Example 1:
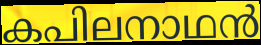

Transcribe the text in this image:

കപിലനാഥൻ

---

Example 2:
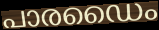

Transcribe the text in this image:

പാരഡൈം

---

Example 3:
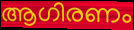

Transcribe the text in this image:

ആഗിരണം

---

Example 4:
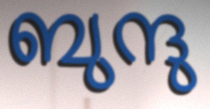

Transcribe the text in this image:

ബുന്ദു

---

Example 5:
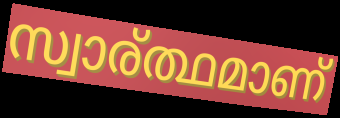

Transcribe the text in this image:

സ്വാര്ത്ഥമാണ്